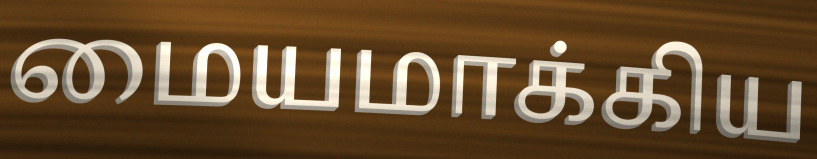
மையமாக்கிய